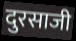
दुरसाजी